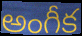
అంగీక